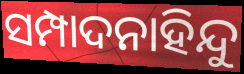
ସମ୍ପାଦନାହିନ୍ଦୁ